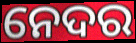
ନେଦର